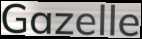
Gazelle